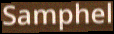
Samphel